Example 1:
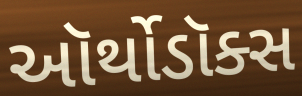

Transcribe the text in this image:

ઑર્થોડૉક્સ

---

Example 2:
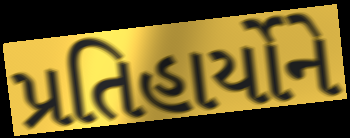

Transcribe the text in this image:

પ્રતિહાર્યોને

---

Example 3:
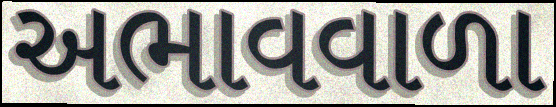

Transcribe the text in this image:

અભાવવાળા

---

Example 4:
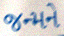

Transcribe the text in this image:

જન્મને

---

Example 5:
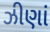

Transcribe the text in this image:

ઝીણાં